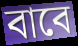
বাবে